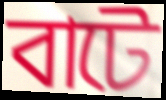
বাটে